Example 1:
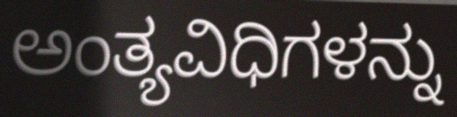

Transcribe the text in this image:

ಅಂತ್ಯವಿಧಿಗಳನ್ನು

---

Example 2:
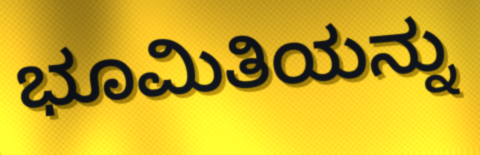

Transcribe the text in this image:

ಭೂಮಿತಿಯನ್ನು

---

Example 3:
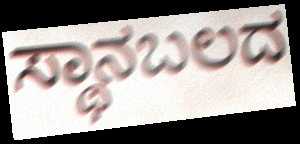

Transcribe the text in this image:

ಸ್ಥಾನಬಲದ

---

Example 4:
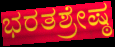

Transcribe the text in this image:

ಭರತಶ್ರೇಷ್ಠ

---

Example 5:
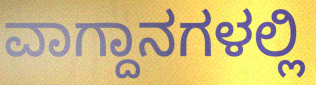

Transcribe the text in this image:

ವಾಗ್ದಾನಗಳಲ್ಲಿ